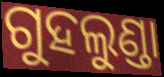
ଗୁହଲୁଣ୍ଡା